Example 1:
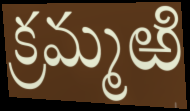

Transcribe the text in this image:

క్రమ్మఱి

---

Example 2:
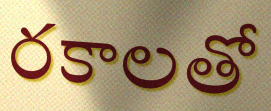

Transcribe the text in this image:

రకాలతో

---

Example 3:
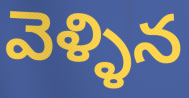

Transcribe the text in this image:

వెళ్ళిన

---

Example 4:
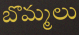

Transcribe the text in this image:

బొమ్మలు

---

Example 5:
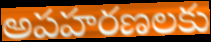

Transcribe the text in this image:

అపహరణలకు